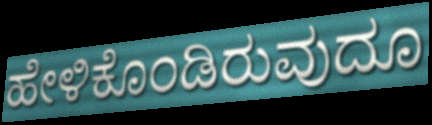
ಹೇಳಿಕೊಂಡಿರುವುದೂ